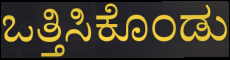
ಒತ್ತಿಸಿಕೊಂಡು